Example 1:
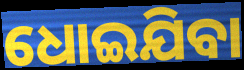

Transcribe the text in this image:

ଧୋଇଯିବା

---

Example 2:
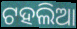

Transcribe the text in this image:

ଟହଲିଆ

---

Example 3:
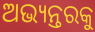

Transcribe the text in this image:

ଅଭ୍ୟନ୍ତରକୁ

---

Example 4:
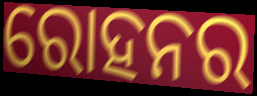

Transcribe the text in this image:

ରୋହନର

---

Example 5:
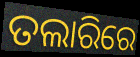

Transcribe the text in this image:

ତଲାରିରେ